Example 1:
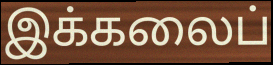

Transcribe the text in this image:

இக்கலைப்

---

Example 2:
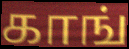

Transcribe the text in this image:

காங்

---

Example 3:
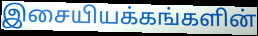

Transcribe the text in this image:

இசையியக்கங்களின்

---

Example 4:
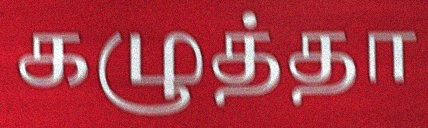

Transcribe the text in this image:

கழுத்தா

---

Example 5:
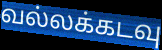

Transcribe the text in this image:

வல்லக்கடவு